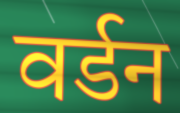
वर्डन